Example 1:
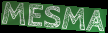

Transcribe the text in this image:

MESMA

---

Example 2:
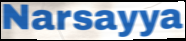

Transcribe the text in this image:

Narsayya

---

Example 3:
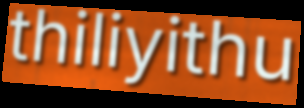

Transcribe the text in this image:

thiliyithu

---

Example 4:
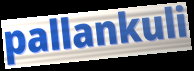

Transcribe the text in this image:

pallankuli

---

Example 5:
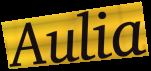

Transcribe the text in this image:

Aulia